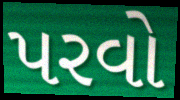
પરવો